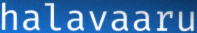
halavaaru